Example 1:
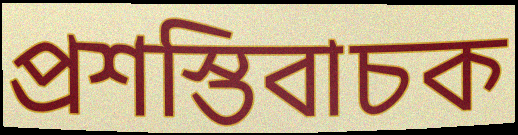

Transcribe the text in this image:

প্রশস্তিবাচক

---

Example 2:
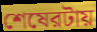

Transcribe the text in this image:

শেষেরটায়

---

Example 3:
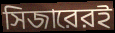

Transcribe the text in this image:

সিজারেরই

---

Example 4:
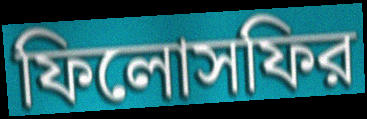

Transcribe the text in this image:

ফিলোসফির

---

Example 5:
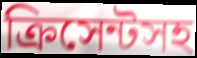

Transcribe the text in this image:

ক্রিসেন্টসহ